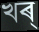
খৰ্